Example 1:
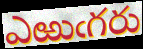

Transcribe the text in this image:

ఎఱుఁగరు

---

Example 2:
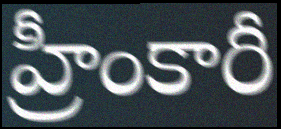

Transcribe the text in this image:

హ్రీంకారీ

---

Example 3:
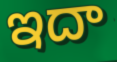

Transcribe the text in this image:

ఇదా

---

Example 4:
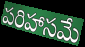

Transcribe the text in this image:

పరిహాసమే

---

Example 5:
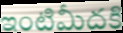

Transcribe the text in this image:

ఇంటిమీదకి